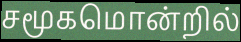
சமூகமொன்றில்